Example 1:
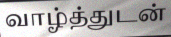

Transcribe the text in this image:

வாழ்த்துடன்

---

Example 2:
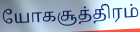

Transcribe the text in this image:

யோகசூத்திரம்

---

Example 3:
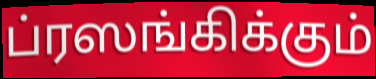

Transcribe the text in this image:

ப்ரஸங்கிக்கும்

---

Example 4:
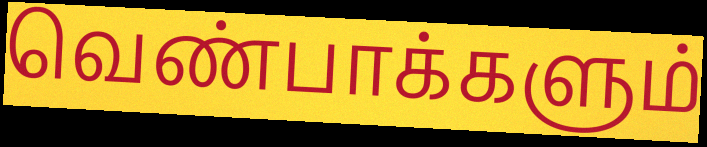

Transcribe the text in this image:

வெண்பாக்களும்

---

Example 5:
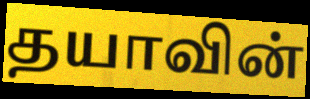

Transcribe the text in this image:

தயாவின்